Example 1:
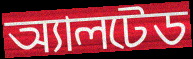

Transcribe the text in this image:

অ্যালটেড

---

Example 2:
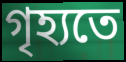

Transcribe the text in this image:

গৃহ্যতে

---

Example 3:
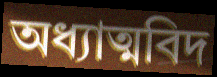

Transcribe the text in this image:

অধ্যাত্মবিদ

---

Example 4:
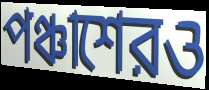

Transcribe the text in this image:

পঞ্চাশেরও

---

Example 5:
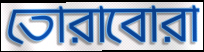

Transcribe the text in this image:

তোরাবোরা